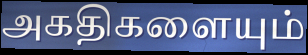
அகதிகளையும்